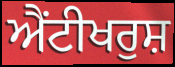
ਐਂਟੀਖਰੁਸ਼